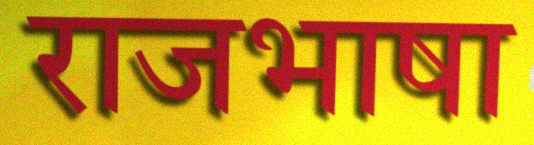
राजभाषा